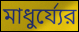
মাধুর্য্যের